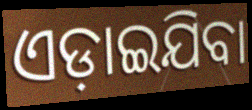
ଏଡ଼ାଇଯିବା